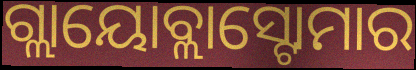
ଗ୍ଲାୟୋବ୍ଲାସ୍ଟୋମାର